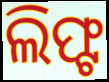
ଲିଫ୍ଟ